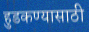
हुडकण्यासाठी